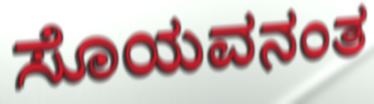
ಸೊಯವನಂತ